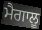
ਮੈਗਾਲੂ